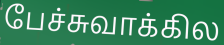
பேச்சுவாக்கில